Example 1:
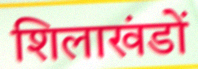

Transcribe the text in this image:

शिलाखंडों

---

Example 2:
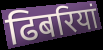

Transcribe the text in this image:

ढिबरियां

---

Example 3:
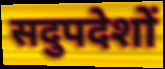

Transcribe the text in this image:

सदुपदेशों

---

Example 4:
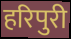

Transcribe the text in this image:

हरिपुरी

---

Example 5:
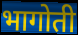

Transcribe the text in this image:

भागोती